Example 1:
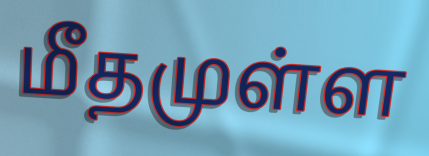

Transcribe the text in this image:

மீதமுள்ள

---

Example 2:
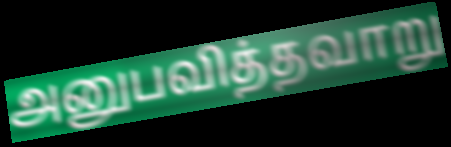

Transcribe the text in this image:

அனுபவித்தவாறு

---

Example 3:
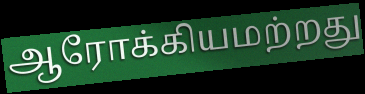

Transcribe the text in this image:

ஆரோக்கியமற்றது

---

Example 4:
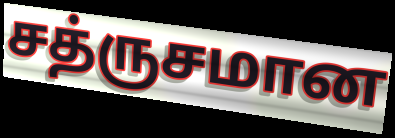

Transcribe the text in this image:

சத்ருசமான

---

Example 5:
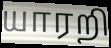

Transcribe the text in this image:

யாரறி